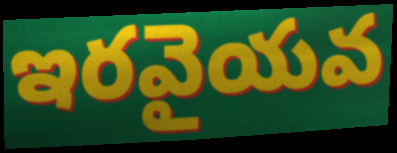
ఇరవైయవ